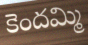
కెందమ్మి